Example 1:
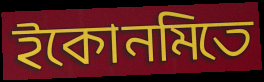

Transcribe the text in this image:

ইকোনমিতে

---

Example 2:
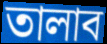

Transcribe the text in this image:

তালাব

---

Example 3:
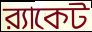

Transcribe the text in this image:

র‍্যাকেট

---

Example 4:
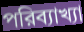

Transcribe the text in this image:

পরিব্যাখ্যা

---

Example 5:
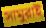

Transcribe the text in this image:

সামুরাই